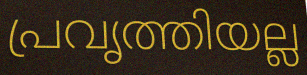
പ്രവൃത്തിയല്ല